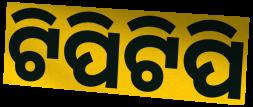
ଟିପିଟିପି